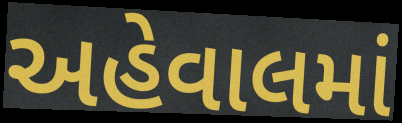
અહેવાલમાં